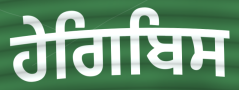
ਹੇਗਿਬਿਸ